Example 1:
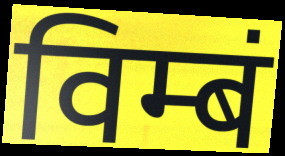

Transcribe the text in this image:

विम्बं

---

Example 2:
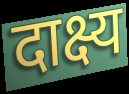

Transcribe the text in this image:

दाक्ष्य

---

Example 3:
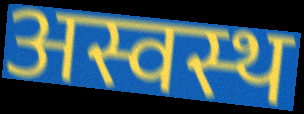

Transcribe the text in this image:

अस्वस्थ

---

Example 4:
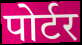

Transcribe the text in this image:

पोर्टर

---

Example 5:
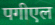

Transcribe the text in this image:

पगीएल